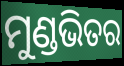
ମୁଣ୍ଡଭିତର